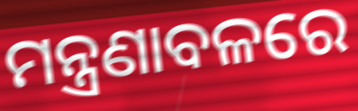
ମନ୍ତ୍ରଣାବଳରେ